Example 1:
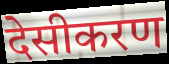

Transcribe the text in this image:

देसीकरण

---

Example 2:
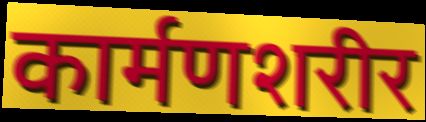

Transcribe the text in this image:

कार्मणशरीर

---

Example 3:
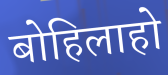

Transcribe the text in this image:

बोहिलाहो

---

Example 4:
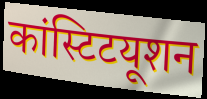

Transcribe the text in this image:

कांस्टिटयूशन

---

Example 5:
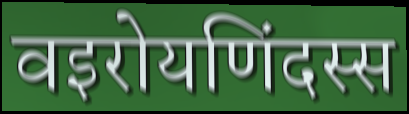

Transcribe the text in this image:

वइरोयणिंदस्स